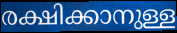
രക്ഷിക്കാനുള്ള